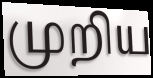
முறிய